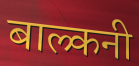
बाल्कनी